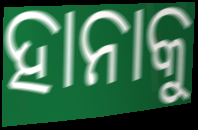
ହାନାକୁ